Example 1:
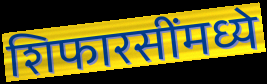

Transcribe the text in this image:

शिफारसींमध्ये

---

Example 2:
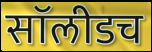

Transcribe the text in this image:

सॉलीडच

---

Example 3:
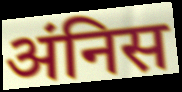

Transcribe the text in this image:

अंनिस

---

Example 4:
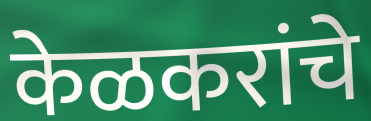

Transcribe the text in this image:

केळकरांचे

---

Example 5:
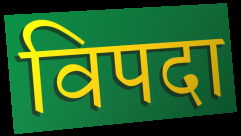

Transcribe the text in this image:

विपदा